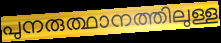
പുനരുത്ഥാനത്തിലുള്ള